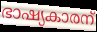
ഭാഷ്യകാരന്